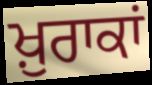
ਖ਼ੁਰਾਕਾਂ